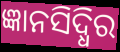
ଜ୍ଞାନସିଦ୍ଧିର